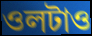
ওলটাও